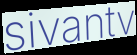
sivantv